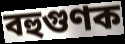
বহুগুণক